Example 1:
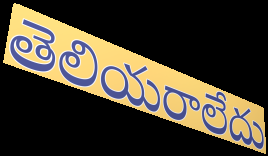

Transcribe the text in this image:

తెలియరాలేదు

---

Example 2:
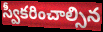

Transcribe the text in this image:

స్వీకరించాల్సిన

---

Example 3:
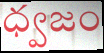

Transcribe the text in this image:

ధ్వజం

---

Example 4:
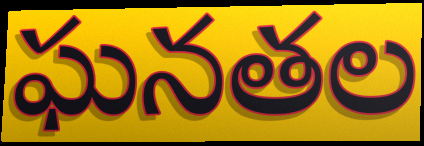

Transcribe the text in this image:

ఘనతల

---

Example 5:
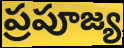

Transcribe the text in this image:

ప్రపూజ్య